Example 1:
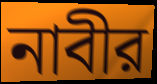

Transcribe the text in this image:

নাবীর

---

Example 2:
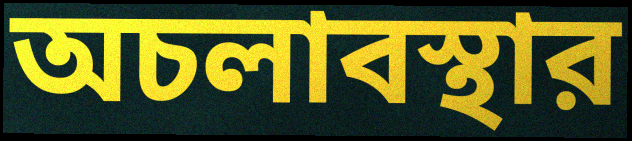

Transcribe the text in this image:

অচলাবস্থার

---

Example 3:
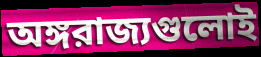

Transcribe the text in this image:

অঙ্গরাজ্যগুলোই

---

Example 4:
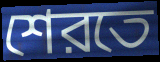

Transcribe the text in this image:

শেরতে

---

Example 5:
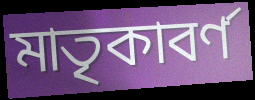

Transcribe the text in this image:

মাতৃকাবর্ণ